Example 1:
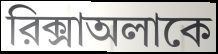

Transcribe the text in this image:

রিক্সাঅলাকে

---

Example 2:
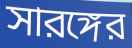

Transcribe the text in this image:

সারঙ্গের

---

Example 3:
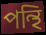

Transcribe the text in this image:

পন্থি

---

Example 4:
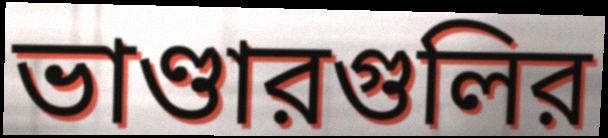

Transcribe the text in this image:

ভাণ্ডারগুলির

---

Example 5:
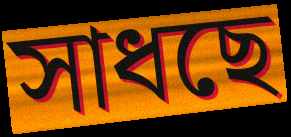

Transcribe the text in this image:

সাধছে